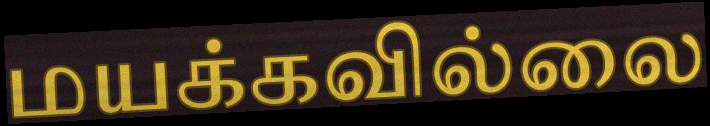
மயக்கவில்லை